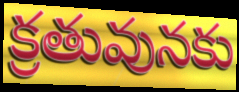
క్రతువునకు